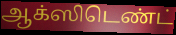
ஆக்ஸிடெண்ட்